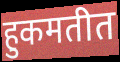
हुकमतीत